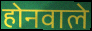
होनवाले